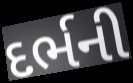
દર્ભની